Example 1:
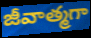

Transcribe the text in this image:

జీవాత్మగా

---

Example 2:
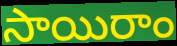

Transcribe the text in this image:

సాయిరాం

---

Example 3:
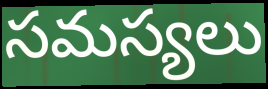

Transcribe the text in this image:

సమస్యలు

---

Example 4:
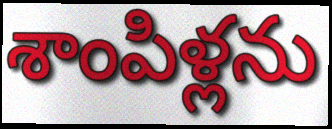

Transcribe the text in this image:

శాంపిళ్లను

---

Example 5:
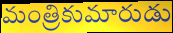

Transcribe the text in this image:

మంత్రికుమారుడు